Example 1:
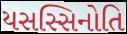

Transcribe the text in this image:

યસસ્સિનોતિ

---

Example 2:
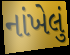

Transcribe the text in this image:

નાંખેલું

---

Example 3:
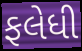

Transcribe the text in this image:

ફલેધી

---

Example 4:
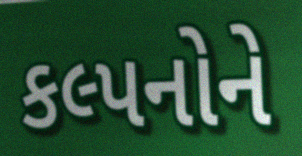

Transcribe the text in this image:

કલ્પનોને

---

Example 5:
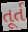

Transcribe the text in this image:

તૂર્ત